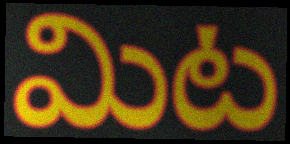
మిట